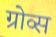
ग्रोव्स